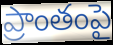
ప్రాంతంపై